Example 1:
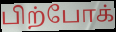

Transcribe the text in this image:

பிற்போக்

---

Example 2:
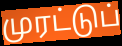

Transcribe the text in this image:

முரட்டுப்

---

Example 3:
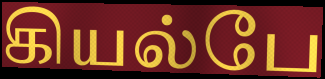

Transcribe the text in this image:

கியல்பே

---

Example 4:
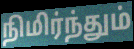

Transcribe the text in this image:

நிமிர்ந்தும்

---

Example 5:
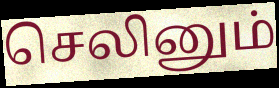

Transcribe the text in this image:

செலினும்